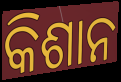
କିଶାନ